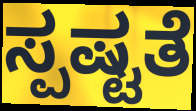
ಸ್ಪಷ್ಟತೆ